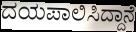
ದಯಪಾಲಿಸಿದ್ದಾನೆ